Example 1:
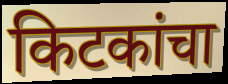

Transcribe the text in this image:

किटकांचा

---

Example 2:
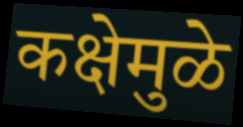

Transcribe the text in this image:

कक्षेमुळे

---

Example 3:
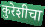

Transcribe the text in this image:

कुरेशीचा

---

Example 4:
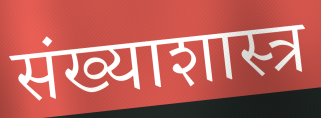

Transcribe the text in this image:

संख्याशास्त्र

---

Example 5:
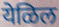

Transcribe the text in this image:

येळिल